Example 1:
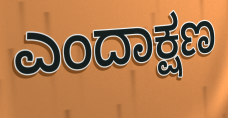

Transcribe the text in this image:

ಎಂದಾಕ್ಷಣ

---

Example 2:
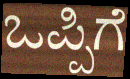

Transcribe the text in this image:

ಒಪ್ಪಿಗೆ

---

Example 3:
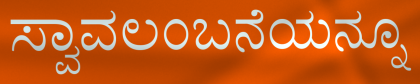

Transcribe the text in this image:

ಸ್ವಾವಲಂಬನೆಯನ್ನೂ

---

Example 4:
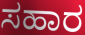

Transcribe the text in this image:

ಸಹಾರ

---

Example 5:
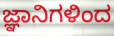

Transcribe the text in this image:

ಜ್ಞಾನಿಗಳಿಂದ